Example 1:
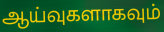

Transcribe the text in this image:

ஆய்வுகளாகவும்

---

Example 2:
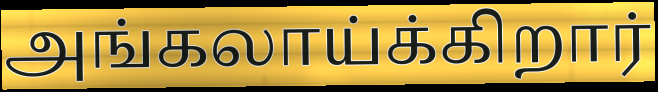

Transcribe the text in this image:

அங்கலாய்க்கிறார்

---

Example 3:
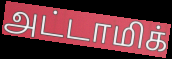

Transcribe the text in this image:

அட்டாமிக்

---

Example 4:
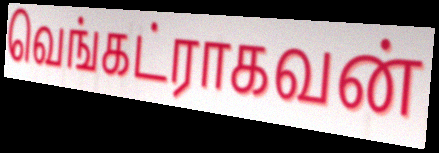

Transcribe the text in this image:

வெங்கட்ராகவன்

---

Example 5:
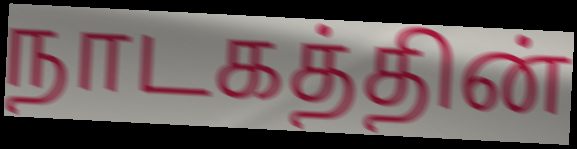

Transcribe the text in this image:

நாடகத்தின்